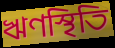
ঋণস্থিতি